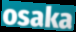
osaka